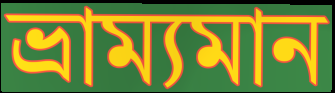
ভ্রাম্যমান